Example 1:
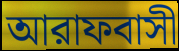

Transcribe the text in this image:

আরাফবাসী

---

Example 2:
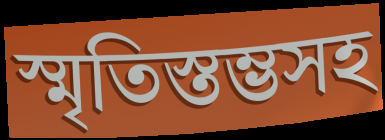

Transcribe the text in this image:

স্মৃতিস্তম্ভসহ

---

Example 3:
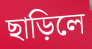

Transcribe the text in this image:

ছাড়িলে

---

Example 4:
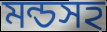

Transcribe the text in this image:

মন্ডসহ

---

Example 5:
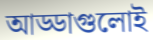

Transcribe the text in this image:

আড্ডাগুলোই